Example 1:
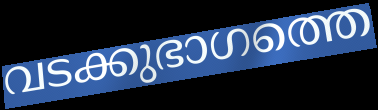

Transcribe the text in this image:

വടക്കുഭാഗത്തെ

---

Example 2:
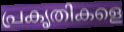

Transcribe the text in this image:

പ്രകൃതികളെ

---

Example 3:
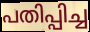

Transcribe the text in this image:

പതിപ്പിച്ച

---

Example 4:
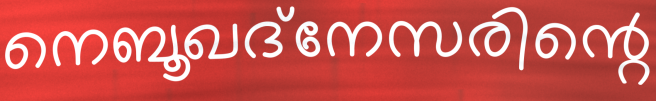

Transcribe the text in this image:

നെബൂഖദ്നേസരിന്റെ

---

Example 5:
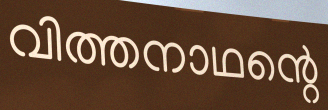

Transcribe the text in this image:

വിത്തനാഥന്റെ